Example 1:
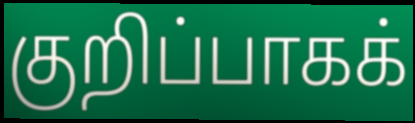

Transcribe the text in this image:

குறிப்பாகக்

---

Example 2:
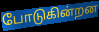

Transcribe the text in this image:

போடுகின்றன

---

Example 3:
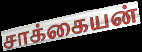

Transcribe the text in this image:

சாக்கையன்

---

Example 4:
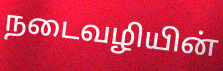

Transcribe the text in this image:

நடைவழியின்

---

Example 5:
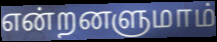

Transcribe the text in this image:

என்றனளுமாம்